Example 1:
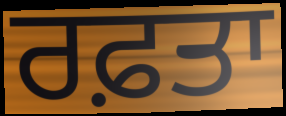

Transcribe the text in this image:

ਰਫ਼ਤਾ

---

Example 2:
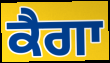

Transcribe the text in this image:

ਕੈਗਾ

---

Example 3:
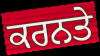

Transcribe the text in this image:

ਕਰਨਤੇ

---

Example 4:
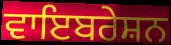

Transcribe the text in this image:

ਵਾਇਬਰੇਸ਼ਨ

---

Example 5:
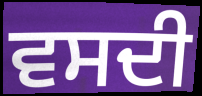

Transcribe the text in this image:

ਵਸਦੀ